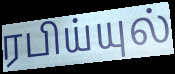
ரபிய்யுல்